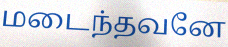
மடைந்தவனே